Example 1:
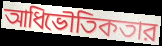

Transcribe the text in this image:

আধিভৌতিকতার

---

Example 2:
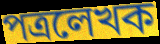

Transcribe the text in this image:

পত্রলেখক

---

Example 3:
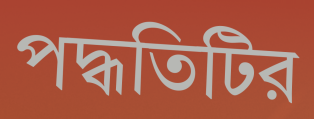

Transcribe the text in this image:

পদ্ধতিটির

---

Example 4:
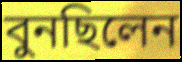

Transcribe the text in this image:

বুনছিলেন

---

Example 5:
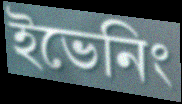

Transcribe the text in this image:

ইভেনিং